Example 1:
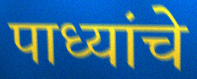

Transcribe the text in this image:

पाध्यांचे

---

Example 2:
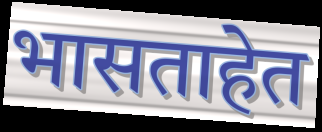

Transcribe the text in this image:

भासताहेत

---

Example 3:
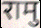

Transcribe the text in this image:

रामु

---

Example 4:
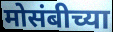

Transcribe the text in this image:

मोसंबीच्या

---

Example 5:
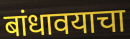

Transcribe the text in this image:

बांधावयाचा